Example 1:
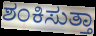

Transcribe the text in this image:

ಶಂಕಿಸುತ್ತಾ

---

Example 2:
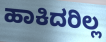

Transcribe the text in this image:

ಹಾಕಿದರಿಲ್ಲ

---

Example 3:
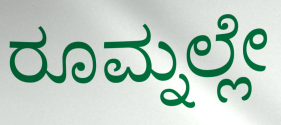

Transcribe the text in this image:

ರೂಮ್ನಲ್ಲೇ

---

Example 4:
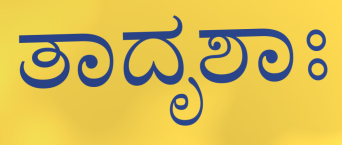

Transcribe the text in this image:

ತಾದೃಶಾಃ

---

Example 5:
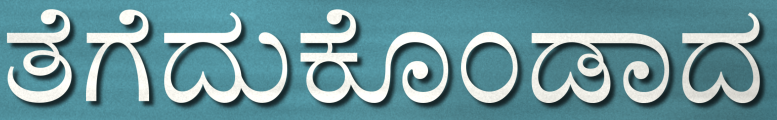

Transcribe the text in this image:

ತೆಗೆದುಕೊಂಡಾದ